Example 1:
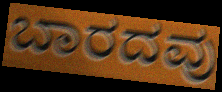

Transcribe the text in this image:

ಬಾರದವು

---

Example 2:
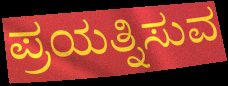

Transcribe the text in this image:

ಪ್ರಯತ್ನಿಸುವ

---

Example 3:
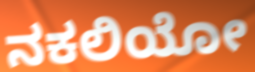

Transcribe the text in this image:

ನಕಲಿಯೋ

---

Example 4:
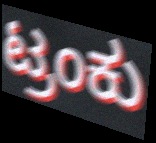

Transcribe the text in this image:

ಟ್ರಂಕು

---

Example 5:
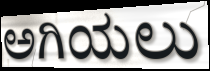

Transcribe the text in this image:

ಅಗಿಯಲು